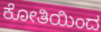
ಕೋತಿಯಿಂದ